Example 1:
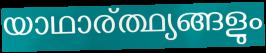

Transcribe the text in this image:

യാഥാര്ത്ഥ്യങ്ങളും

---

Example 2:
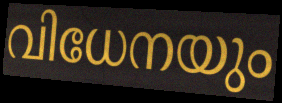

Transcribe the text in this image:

വിധേനയും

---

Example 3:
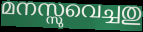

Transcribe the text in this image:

മനസ്സുവെച്ചതു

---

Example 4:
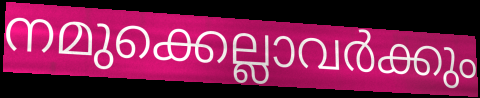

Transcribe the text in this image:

നമുക്കെല്ലാവർക്കും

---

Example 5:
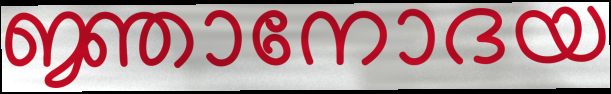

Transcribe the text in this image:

ജ്ഞാനോദയ